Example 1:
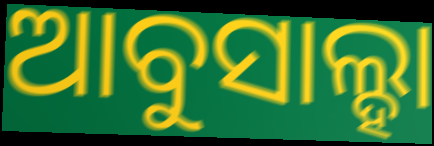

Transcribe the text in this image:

ଆବୁସାଲ୍ହା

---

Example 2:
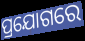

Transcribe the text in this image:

ପ୍ରଯୋଗରେ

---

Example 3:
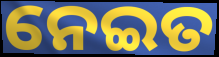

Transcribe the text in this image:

ନେଇତ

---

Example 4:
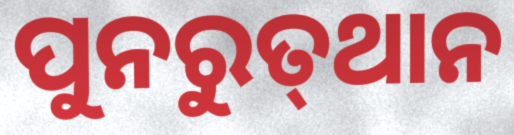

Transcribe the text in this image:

ପୁନରୁତ୍‍ଥାନ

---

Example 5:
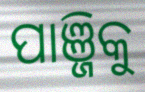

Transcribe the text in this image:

ପାଞ୍ଜିକୁ